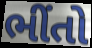
ભીંતો